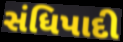
સંધિપાદી